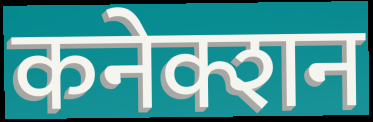
कनेक्शन